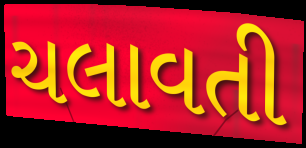
ચલાવતી